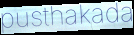
pusthakada